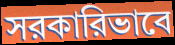
সরকারিভাবে